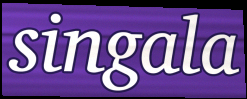
singala